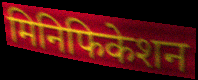
मिनिफिकेशन